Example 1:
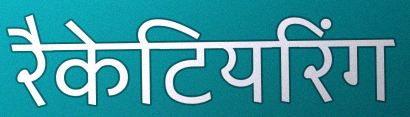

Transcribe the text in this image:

रैकेटियरिंग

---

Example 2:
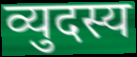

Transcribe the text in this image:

व्युदस्य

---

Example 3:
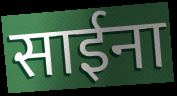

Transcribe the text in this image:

साईना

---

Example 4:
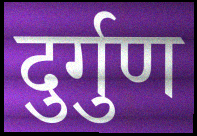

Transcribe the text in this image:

दुर्गुण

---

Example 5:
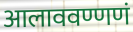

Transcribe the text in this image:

आलाववण्णणं